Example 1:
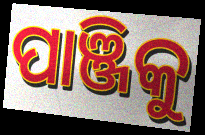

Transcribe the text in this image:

ପାଞ୍ଜିକୁ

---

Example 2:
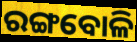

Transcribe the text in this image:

ରଙ୍ଗବୋଳି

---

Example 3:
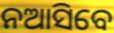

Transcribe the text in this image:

ନଆସିବେ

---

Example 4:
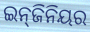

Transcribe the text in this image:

ଇନ୍‌ଜିନିୟର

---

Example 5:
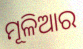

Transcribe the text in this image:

ମୂଳିଆର